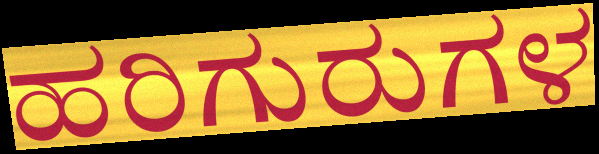
ಹರಿಗುರುಗಳ